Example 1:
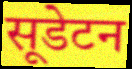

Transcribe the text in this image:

सूडेटन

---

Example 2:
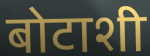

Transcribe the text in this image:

बोटाशी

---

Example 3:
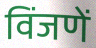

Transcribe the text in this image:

विंजणें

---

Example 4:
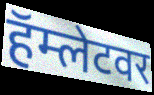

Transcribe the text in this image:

हॅम्लेटवर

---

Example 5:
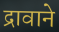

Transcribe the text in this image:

द्रावाने